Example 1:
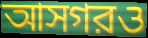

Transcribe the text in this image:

আসগরও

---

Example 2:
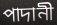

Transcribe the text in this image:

পাদানী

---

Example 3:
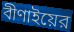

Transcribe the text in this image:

বীণাইয়ের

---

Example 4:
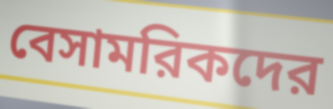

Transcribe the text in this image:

বেসামরিকদের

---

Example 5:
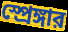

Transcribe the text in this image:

স্প্রেঙ্গার